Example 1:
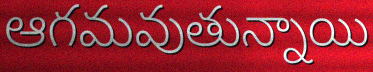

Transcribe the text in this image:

ఆగమవుతున్నాయి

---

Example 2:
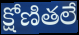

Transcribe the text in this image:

క్షోణితలే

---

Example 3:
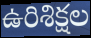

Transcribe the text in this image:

ఉరిశిక్షల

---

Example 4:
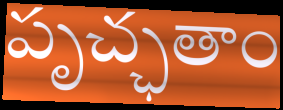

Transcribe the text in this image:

పృచ్ఛతాం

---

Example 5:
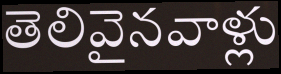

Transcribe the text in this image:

తెలివైనవాళ్లు